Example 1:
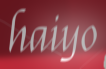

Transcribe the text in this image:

haiyo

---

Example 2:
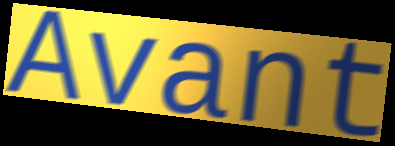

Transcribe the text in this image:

Avant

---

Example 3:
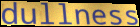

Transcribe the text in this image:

dullness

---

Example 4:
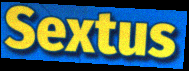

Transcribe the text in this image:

Sextus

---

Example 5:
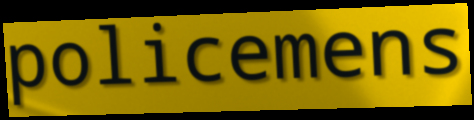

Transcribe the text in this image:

policemens